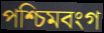
পশ্চিমবংগ